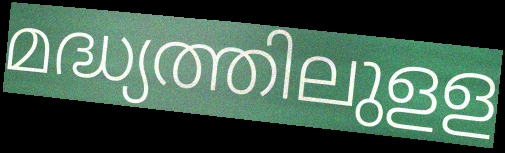
മദ്ധ്യത്തിലുളള